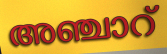
അഞ്ചാറ്